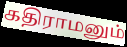
கதிராமனும்